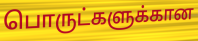
பொருட்களுக்கான